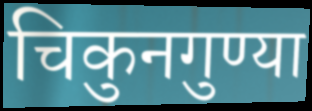
चिकुनगुण्या